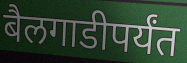
बैलगाडीपर्यंत